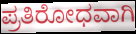
ಪ್ರತಿರೋಧವಾಗಿ